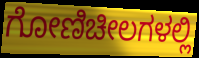
ಗೋಣಿಚೀಲಗಳಲ್ಲಿ